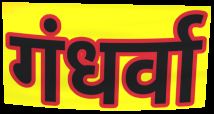
गंधर्वा